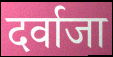
दर्वाजा